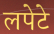
लपेटे